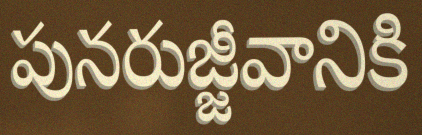
పునరుజ్జీవానికి